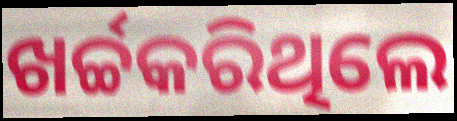
ଖର୍ଚ୍ଚକରିଥିଲେ